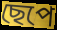
ছেপে